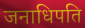
जनाधिपति